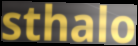
sthalo